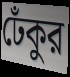
ঢেঁকুর